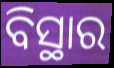
ବିସ୍ଥାର